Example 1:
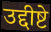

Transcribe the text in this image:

उद्दीष्टे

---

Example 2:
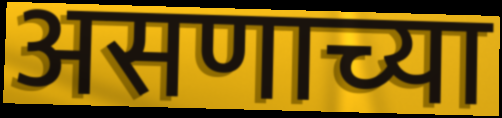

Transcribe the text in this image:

असणाच्या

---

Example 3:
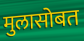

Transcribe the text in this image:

मुलासोबत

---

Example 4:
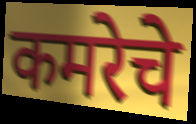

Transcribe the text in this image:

कमरेचे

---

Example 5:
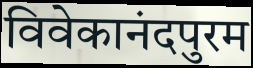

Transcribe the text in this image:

विवेकानंदपुरम